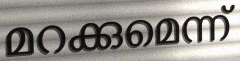
മറക്കുമെന്ന്